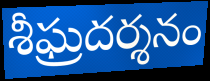
శీఘ్రదర్శనం